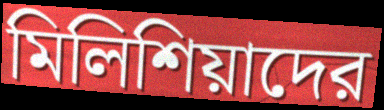
মিলিশিয়াদের